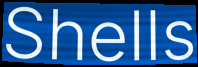
Shells